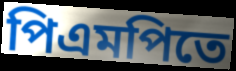
পিএমপিতে